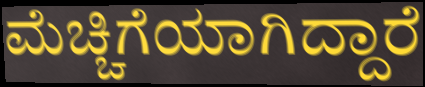
ಮೆಚ್ಚಿಗೆಯಾಗಿದ್ದಾರೆ